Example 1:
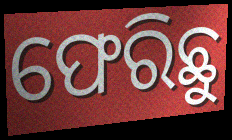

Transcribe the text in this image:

ଫେରିଛୁ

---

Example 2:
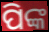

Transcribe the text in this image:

ପିଙ୍କ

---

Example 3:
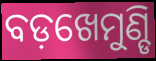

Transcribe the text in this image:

ବଡ଼ଖେମୁଣ୍ଡି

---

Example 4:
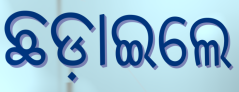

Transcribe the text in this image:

ଛଡ଼ାଇଲେ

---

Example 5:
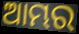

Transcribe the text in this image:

ଆମ୍ଭର